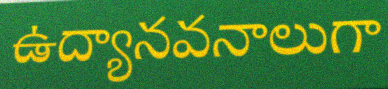
ఉద్యానవనాలుగా